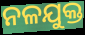
ନଳଯୁକ୍ତ